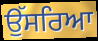
ਉੱਸਰਿਆ